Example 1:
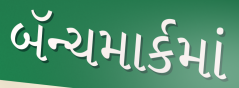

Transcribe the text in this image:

બૅન્ચમાર્કમાં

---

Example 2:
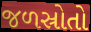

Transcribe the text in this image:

જળસ્રોતો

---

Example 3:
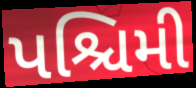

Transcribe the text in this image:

પશ્ચિમી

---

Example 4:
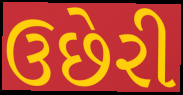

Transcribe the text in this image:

ઉછેરી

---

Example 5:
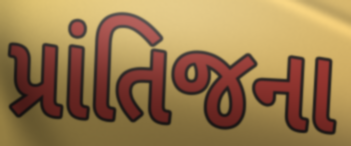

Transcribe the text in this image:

પ્રાંતિજના